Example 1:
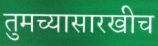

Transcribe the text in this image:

तुमच्यासारखीच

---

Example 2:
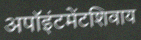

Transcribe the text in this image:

अपॉइंटमेंटशिवाय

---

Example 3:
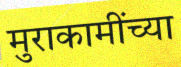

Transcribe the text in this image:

मुराकामींच्या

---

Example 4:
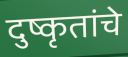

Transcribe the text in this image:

दुष्कृतांचे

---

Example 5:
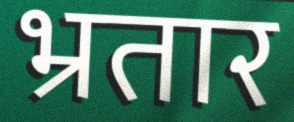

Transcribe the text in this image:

भ्रतार